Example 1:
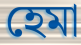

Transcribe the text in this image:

হেমা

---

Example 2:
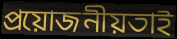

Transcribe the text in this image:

প্ৰয়োজনীয়তাই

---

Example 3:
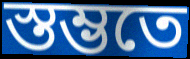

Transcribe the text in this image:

স্তম্ভতে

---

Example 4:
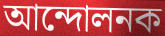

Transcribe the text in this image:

আন্দোলনক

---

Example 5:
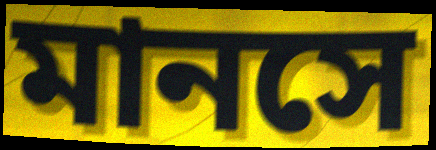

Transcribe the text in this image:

মানসে